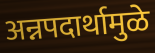
अन्नपदार्थामुळे